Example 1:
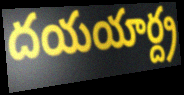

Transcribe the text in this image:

దయయార్ద్ర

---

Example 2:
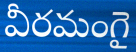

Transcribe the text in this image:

వీరమంగై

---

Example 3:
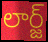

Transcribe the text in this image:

లార్జ్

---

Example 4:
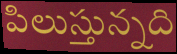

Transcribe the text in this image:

పిలుస్తున్నది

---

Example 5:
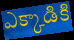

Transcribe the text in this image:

ఎక్కాడికి